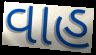
વાહ